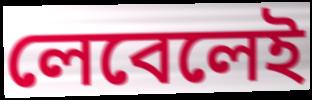
লেবেলেই